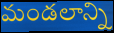
మండలాన్ని